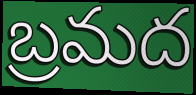
బ్రమద